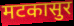
मटकासुर